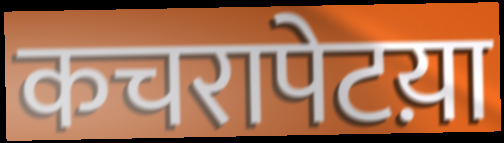
कचरापेटय़ा